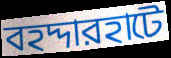
বহদ্দারহাটে